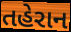
તહેરાન